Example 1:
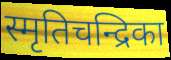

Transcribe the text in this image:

स्मृतिचन्द्रिका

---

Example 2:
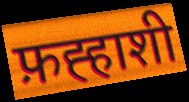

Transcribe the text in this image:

फ़ह्हाशी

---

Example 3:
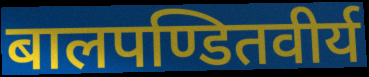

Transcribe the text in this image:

बालपण्डितवीर्य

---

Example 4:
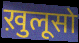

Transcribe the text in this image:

ख़ुलूसो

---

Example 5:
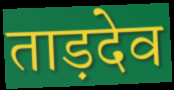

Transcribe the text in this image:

ताड़देव